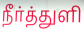
நீர்த்துளி